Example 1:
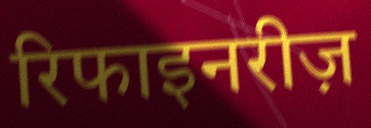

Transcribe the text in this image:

रिफाइनरीज़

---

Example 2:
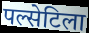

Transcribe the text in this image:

पल्सेटिला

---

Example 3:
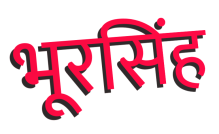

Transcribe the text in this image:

भूरसिंह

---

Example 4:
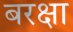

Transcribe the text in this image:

बरक्षा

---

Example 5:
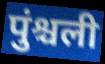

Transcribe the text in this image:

पुंश्चली